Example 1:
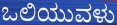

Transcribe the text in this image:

ಒಲಿಯುವಳು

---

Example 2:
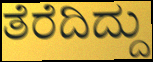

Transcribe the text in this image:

ತೆರೆದಿದ್ದು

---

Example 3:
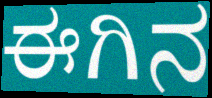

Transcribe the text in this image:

ಈಗಿನ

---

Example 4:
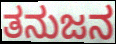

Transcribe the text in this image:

ತನುಜನ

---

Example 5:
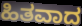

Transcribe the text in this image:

ಹಿತವಾದ